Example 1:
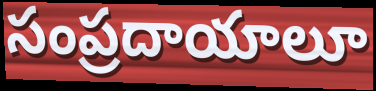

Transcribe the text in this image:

సంప్రదాయాలూ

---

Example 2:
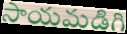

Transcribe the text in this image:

సాయమడిగి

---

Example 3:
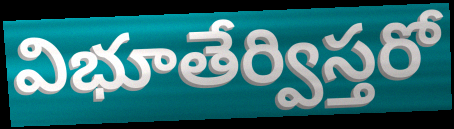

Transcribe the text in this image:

విభూతేర్విస్తరో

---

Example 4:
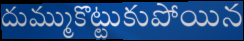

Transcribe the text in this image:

దుమ్ముకొట్టుకుపోయిన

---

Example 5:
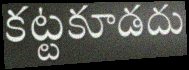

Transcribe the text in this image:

కట్టకూడదు